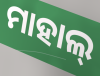
ମାହାଲ୍